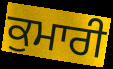
ਕੁਮਾਰੀ